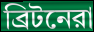
ব্রিটনেরা